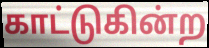
காட்டுகின்ற